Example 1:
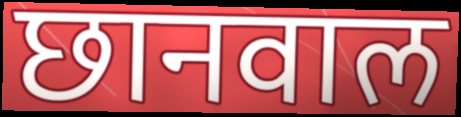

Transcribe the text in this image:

छानवाल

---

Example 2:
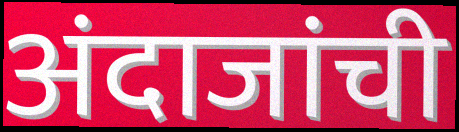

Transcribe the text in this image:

अंदाजांची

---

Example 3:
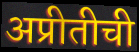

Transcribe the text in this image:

अप्रीतीची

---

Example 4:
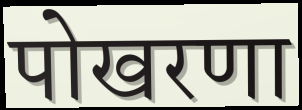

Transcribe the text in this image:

पोखरणा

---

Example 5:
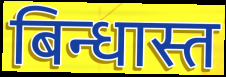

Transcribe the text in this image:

बिन्धास्त